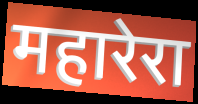
महारेरा